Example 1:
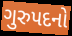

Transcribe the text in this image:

ગુરુપદનો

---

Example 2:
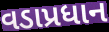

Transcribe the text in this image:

વડાપ્રધાન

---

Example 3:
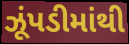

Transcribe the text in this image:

ઝૂંપડીમાંથી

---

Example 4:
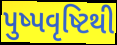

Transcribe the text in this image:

પુષ્પવૃષ્ટિથી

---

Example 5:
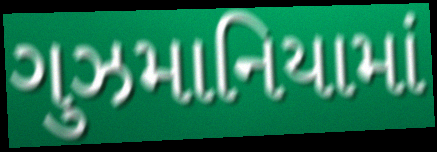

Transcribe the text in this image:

ગુઝમાનિયામાં